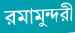
রমামুন্দরী